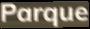
Parque